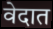
वेदात